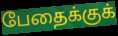
பேதைக்குக்